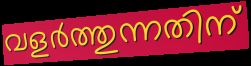
വളർത്തുന്നതിന്